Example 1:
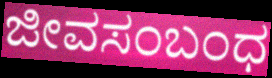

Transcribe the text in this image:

ಜೀವಸಂಬಂಧ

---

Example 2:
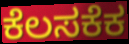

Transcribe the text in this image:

ಕೆಲಸಕೆಕ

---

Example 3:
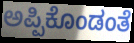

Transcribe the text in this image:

ಅಪ್ಪಿಕೊಂಡಂತೆ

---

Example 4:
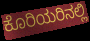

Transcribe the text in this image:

ಕೊರಿಯರಿನಲ್ಲಿ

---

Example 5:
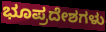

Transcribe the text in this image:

ಭೂಪ್ರದೇಶಗಳು